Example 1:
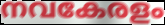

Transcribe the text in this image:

നവകേരളം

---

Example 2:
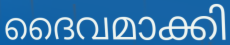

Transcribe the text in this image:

ദൈവമാക്കി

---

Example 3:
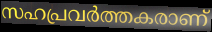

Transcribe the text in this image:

സഹപ്രവർത്തകരാണ്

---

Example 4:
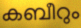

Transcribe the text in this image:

കബീറും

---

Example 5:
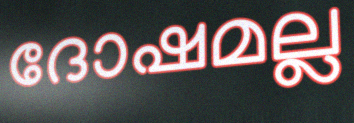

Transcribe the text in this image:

ദോഷമല്ല